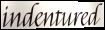
indentured